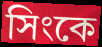
সিংকে